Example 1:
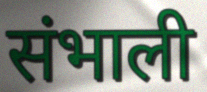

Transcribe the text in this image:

संभाली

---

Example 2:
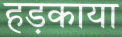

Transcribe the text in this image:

हड़काया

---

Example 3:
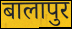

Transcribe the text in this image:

बालापुर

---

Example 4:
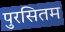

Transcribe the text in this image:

पुरसितम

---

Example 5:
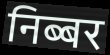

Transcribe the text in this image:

निब्बर